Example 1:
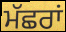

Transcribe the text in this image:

ਮੱਛਰਾਂ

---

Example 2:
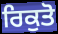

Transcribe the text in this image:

ਰਿਕੁਤੋ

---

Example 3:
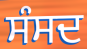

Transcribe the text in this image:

ਸੰਸਦ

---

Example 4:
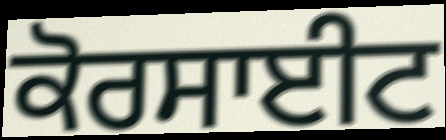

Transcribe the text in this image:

ਕੋਰਸਾਈਟ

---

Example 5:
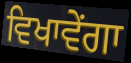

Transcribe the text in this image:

ਵਿਖਾਵੇਂਗਾ